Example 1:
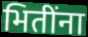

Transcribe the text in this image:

भितींना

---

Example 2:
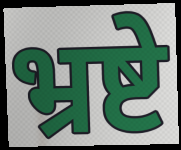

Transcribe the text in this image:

भ्रष्टे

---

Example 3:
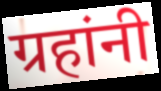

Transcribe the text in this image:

ग्रहांनी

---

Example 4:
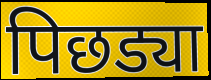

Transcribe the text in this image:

पिछड्या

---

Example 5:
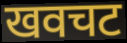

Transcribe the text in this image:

खवचट